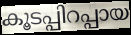
കൂടപ്പിറപ്പായ